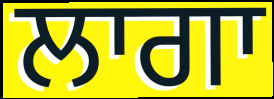
ਲਾਗਾ